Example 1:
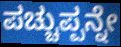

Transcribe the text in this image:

ಪಚ್ಚುಪ್ಪನ್ನೇ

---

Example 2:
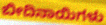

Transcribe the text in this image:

ಬೀದಿನಾಯಿಗಳು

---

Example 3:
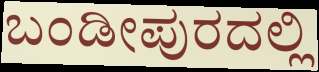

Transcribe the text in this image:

ಬಂಡೀಪುರದಲ್ಲಿ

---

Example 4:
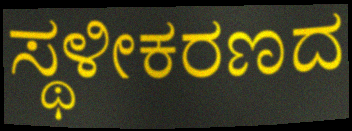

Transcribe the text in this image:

ಸ್ಥಳೀಕರಣದ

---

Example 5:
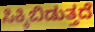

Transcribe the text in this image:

ಸಿಕ್ಕಿಬಿಡುತ್ತದೆ